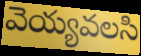
వెయ్యవలసి